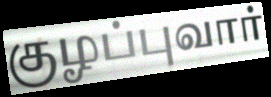
குழப்புவார்